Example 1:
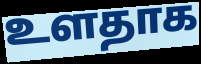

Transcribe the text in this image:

உளதாக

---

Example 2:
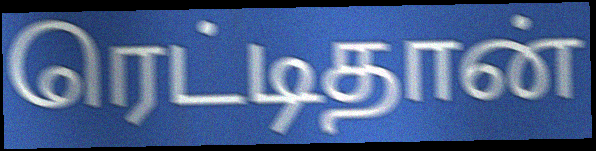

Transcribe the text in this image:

ரெட்டிதான்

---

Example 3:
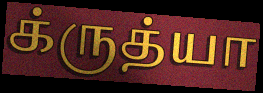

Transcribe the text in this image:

க்ருத்யா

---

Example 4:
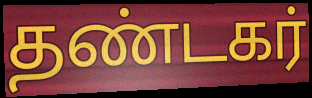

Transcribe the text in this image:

தண்டகர்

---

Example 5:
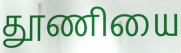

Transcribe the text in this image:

தூணியை